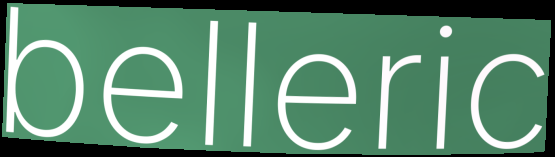
belleric